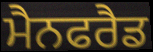
ਮੈਨਫਰੈਡ